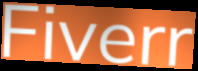
Fiverr